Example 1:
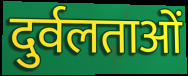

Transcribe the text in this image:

दुर्वलताओं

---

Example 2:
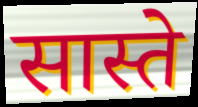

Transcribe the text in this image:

सास्ते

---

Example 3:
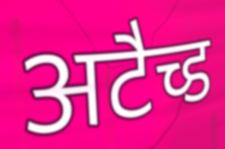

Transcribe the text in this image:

अटैच्ड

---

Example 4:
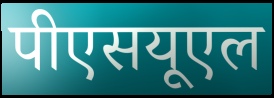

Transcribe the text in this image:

पीएसयूएल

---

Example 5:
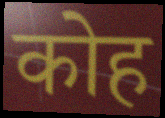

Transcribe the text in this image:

कोह